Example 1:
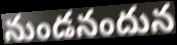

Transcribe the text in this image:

నుండనందున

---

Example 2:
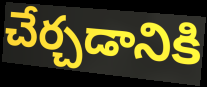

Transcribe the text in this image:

చేర్చడానికి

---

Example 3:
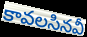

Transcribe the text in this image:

కావలసినవీ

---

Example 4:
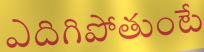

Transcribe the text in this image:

ఎదిగిపోతుంటే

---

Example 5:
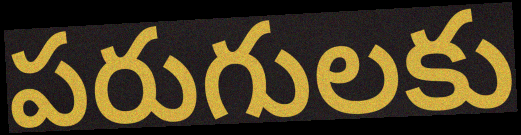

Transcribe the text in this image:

పరుగులకు